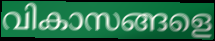
വികാസങ്ങളെ